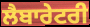
ਲੈਬਾਰੇਟਰੀ